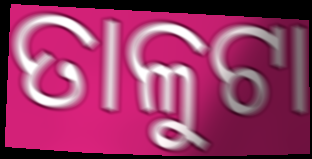
ତାଳୁଟା